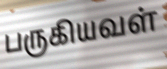
பருகியவள்